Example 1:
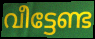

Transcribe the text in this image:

വീട്ടേണ്ട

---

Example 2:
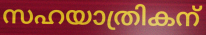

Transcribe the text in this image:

സഹയാത്രികന്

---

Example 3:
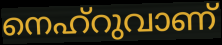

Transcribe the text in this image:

നെഹ്റുവാണ്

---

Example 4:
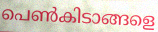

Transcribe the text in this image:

പെൺകിടാങ്ങളെ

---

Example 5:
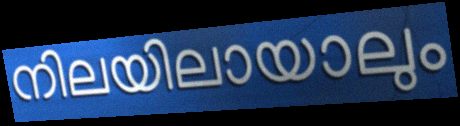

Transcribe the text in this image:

നിലയിലായാലും